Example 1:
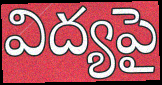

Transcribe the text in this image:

విద్యపై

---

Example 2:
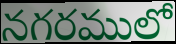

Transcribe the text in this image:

నగరములో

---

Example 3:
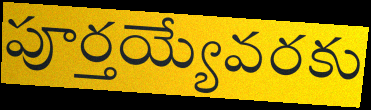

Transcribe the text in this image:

పూర్తయ్యేవరకు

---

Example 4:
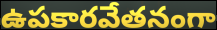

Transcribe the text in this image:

ఉపకారవేతనంగా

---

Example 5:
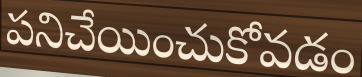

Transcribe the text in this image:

పనిచేయించుకోవడం